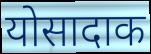
योसादाक